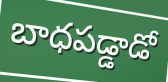
బాధపడ్డాడో